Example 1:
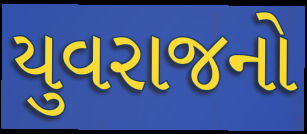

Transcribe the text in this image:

યુવરાજનો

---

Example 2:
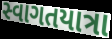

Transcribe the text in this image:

સ્વાગતયાત્રા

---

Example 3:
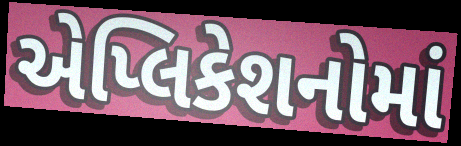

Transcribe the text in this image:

એપ્લિકેશનોમાં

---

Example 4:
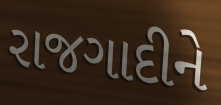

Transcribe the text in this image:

રાજગાદીને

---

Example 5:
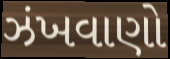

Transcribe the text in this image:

ઝંખવાણો